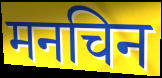
मनचिन